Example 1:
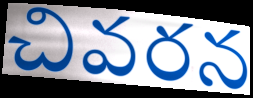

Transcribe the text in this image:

చివరన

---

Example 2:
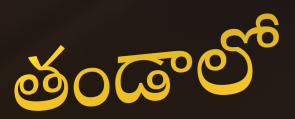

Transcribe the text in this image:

తండాలో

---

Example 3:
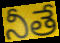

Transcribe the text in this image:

నీతే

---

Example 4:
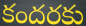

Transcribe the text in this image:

కందరకు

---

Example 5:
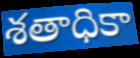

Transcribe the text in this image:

శతాధికా